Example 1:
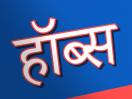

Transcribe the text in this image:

हॉब्स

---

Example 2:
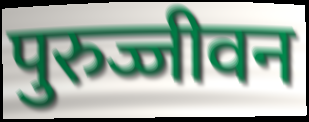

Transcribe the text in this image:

पुरुज्जीवन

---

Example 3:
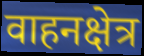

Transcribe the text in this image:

वाहनक्षेत्र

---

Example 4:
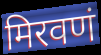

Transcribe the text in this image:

मिरवणं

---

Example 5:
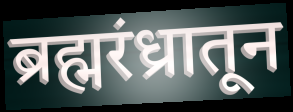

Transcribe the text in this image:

ब्रह्मरंध्रातून